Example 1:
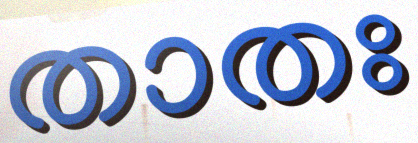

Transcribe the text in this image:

താതഃ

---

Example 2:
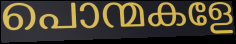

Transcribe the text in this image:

പൊന്മകളേ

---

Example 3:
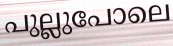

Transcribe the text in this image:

പുല്ലുപോലെ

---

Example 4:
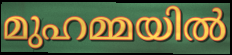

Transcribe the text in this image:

മുഹമ്മയിൽ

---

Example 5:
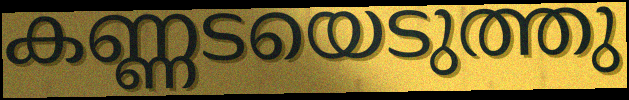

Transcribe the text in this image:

കണ്ണടയെടുത്തു